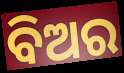
ବିଅର